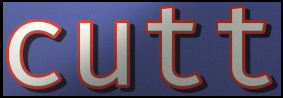
cutt